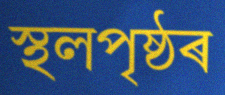
স্থলপৃষ্ঠৰ